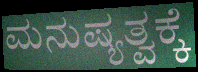
ಮನುಷ್ಯತ್ವಕ್ಕೆ